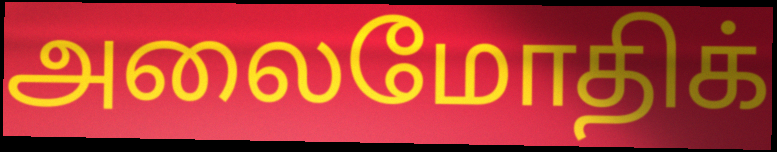
அலைமோதிக்